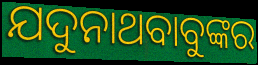
ଯଦୁନାଥବାବୁଙ୍କର